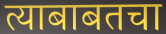
त्याबाबतचा